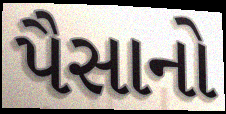
પૈસાનો